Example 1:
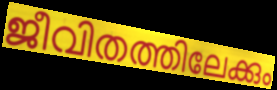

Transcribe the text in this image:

ജീവിതത്തിലേക്കും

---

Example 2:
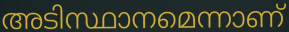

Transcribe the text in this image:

അടിസ്ഥാനമെന്നാണ്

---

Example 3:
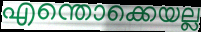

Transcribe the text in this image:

എന്തൊക്കെയല്ല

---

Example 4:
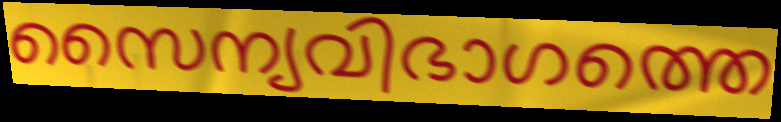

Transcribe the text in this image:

സൈന്യവിഭാഗത്തെ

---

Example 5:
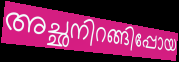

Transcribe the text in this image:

അച്ഛനിറങ്ങിപ്പോയ